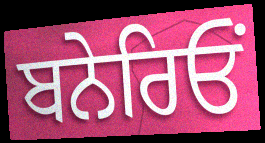
ਬਨੇਰਿਓਂ